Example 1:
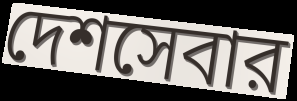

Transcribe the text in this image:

দেশসেবার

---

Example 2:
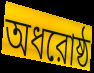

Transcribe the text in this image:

অধরোষ্ঠ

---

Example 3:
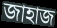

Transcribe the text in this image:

জাহাজ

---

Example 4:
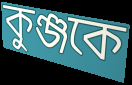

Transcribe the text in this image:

কুঞ্জকে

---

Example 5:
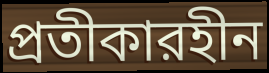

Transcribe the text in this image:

প্রতীকারহীন